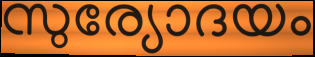
സുര്യോദയം